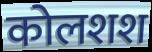
कोलशश